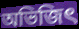
অভিজিৎ